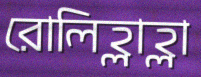
রোলিহ্লাহ্লা